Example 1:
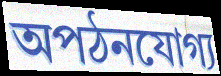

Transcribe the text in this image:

অপঠনযোগ্য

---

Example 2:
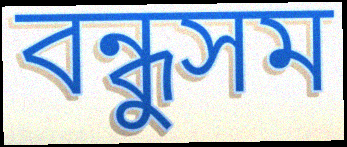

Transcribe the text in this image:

বন্ধুসম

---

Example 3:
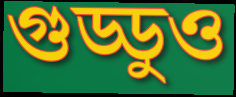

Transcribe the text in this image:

গুড্ডুও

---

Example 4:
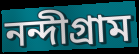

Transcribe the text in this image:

নন্দীগ্রাম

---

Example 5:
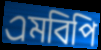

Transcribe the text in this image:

এমবিপি